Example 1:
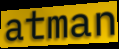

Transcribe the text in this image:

atman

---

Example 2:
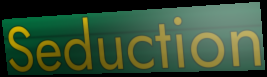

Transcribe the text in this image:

Seduction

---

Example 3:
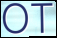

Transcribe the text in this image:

OT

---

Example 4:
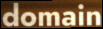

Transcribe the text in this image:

domain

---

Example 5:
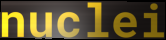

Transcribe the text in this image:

nuclei